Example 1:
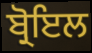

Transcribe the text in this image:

ਬ੍ਰੋਇਲ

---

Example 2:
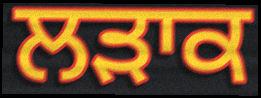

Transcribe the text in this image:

ਲੜਾਕ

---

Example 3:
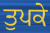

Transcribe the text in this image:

ਤੁਪਕੇ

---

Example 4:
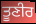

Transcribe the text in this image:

ਤੂਣੀਰ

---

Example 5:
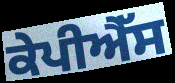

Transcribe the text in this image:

ਕੇਪੀਐੱਸ